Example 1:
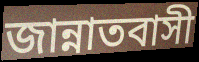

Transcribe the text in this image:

জান্নাতবাসী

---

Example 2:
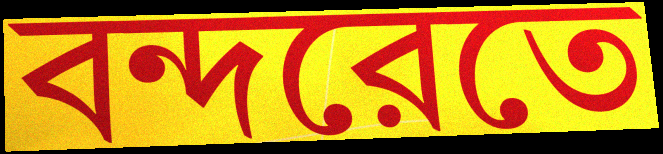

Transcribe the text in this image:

বন্দরেতে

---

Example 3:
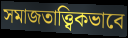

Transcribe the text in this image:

সমাজতাত্ত্বিকভাবে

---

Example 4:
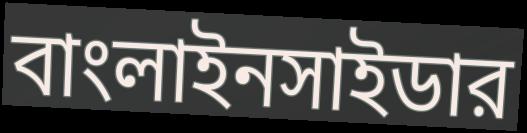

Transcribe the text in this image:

বাংলাইনসাইডার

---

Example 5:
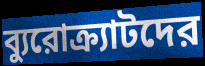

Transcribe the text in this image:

ব্যুরোক্র্যাটদের